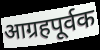
आग्रहपूर्वक